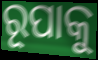
ରୂପାକୁ